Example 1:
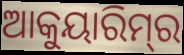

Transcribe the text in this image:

ଆକୁୟାରିମ୍‌ର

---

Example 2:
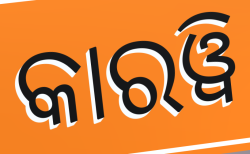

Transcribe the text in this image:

କାରୱି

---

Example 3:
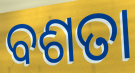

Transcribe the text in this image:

ବଶତା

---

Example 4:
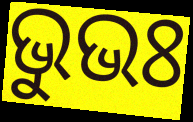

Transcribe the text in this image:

ଭୁଭଃ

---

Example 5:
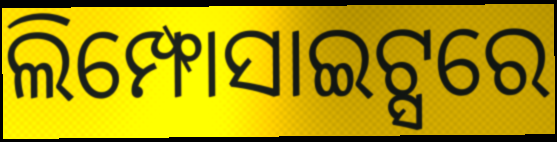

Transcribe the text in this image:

ଲିମ୍ଫୋସାଇଟ୍ସରେ